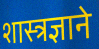
शास्त्रज्ञाने